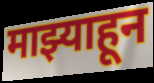
माझ्याहून